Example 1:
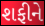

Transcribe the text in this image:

શફીને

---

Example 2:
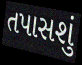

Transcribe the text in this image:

તપાસશું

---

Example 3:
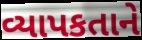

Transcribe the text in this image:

વ્યાપકતાને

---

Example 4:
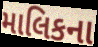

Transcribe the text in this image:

માલિકના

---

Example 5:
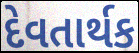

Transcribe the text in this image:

દેવતાર્થક